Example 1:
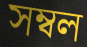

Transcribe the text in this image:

সম্বল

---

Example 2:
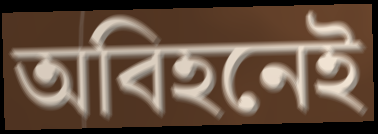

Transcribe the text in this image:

অবিহনেই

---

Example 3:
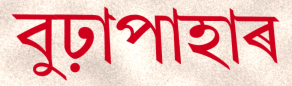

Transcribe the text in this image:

বুঢ়াপাহাৰ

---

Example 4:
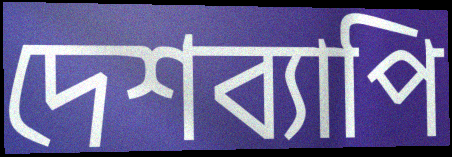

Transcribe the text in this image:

দেশব্যাপি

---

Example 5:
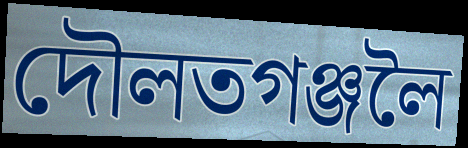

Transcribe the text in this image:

দৌলতগঞ্জলৈ